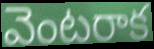
వెంటరాక